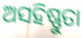
ଅସହିଷ୍ଣୁତା